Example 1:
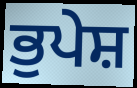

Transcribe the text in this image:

ਭੁਪੇਸ਼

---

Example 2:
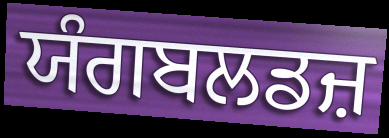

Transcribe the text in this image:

ਯੰਗਬਲਡਜ਼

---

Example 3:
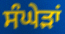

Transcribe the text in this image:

ਸੰਘੇੜਾਂ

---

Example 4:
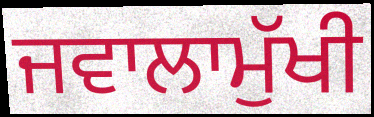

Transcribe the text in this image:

ਜਵਾਲਾਮੁੱਖੀ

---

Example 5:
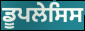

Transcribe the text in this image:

ਡੂਪਲੇਸਿਸ